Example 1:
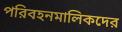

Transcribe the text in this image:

পরিবহনমালিকদের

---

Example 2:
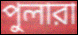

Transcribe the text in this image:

পুলারা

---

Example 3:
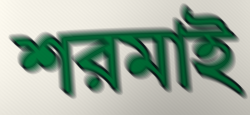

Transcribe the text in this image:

শরমাই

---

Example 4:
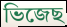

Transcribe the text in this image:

ভিজেছ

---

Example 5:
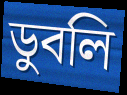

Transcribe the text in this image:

ডুবলি